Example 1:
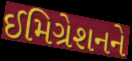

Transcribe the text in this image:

ઈમિગ્રેશનને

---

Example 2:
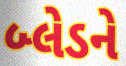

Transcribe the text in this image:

બ્લેડને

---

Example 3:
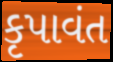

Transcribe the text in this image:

કૃપાવંત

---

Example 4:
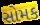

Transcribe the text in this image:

સોમક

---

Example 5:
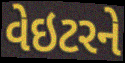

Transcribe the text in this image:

વેઇટરને